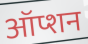
ऑप्‍शन